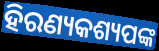
ହିରଣ୍ୟକଶ୍ୟପଙ୍କ